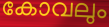
കോവലും